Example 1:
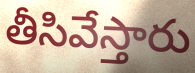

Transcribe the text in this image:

తీసివేస్తారు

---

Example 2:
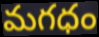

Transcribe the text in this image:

మగధం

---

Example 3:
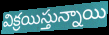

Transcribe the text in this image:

విక్రయిస్తున్నాయి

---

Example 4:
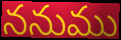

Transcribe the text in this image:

ననుము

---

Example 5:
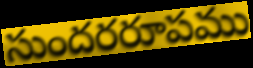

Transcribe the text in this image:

సుందరరూపము